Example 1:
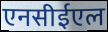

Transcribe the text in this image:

एनसीईएल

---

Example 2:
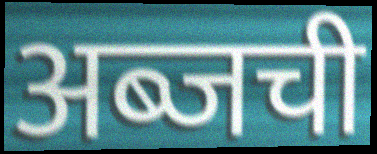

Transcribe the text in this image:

अब्जची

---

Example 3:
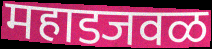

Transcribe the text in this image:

महाडजवळ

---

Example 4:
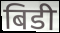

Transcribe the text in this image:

बिडी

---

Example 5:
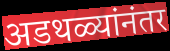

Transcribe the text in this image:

अडथळ्यांनंतर